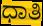
ಧಾತಿ